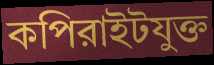
কপিরাইটযুক্ত